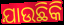
ଯାଉଛିକି